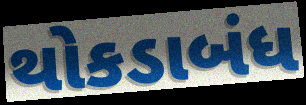
થોકડાબંધ